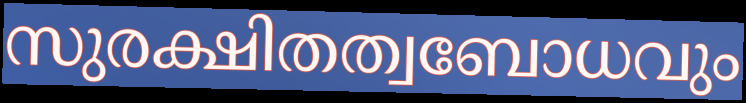
സുരക്ഷിതത്വബോധവും